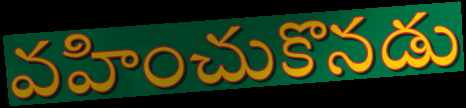
వహించుకొనడు